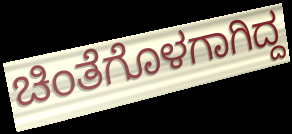
ಚಿಂತೆಗೊಳಗಾಗಿದ್ದ